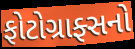
ફોટોગ્રાફ્સનો